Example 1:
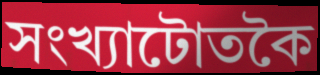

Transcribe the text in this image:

সংখ্যাটোতকৈ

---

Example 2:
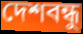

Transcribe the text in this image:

দেশবন্ধু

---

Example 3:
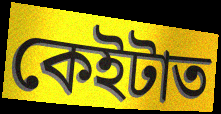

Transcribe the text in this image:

কেইটাত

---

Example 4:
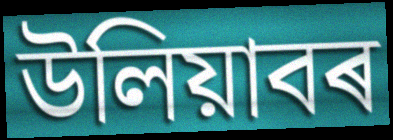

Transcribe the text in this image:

উলিয়াবৰ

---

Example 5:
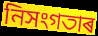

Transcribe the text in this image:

নিসংগতাৰ